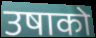
उषाको